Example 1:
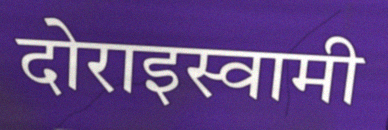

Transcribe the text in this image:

दोराइस्वामी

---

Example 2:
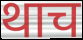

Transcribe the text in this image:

थाच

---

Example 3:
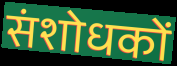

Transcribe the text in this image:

संशोधकों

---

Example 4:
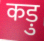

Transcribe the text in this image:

कड़ु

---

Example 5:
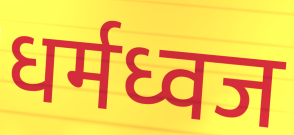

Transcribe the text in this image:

धर्मध्वज